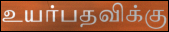
உயர்பதவிக்கு